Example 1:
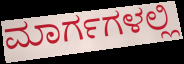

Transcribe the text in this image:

ಮಾರ್ಗಗಳಲ್ಲಿ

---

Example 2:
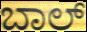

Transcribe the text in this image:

ಬಾಲ್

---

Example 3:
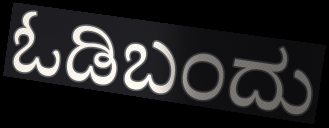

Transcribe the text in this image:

ಓಡಿಬಂದು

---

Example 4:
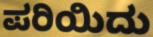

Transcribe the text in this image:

ಪರಿಯಿದು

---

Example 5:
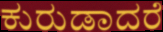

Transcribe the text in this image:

ಕುರುಡಾದರೆ